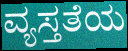
ವ್ಯಸ್ತತೆಯ